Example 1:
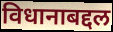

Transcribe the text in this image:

विधानाबद्दल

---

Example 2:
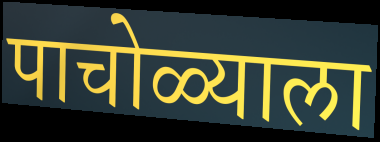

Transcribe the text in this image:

पाचोळ्याला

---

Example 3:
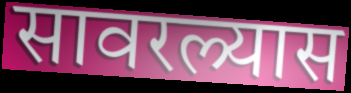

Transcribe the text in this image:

सावरल्यास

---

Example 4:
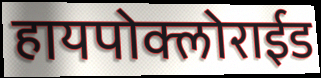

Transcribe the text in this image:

हायपोक्लोराईड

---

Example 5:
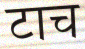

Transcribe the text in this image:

टाच